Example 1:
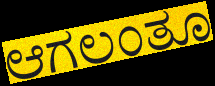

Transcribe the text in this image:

ಆಗಲಂತೂ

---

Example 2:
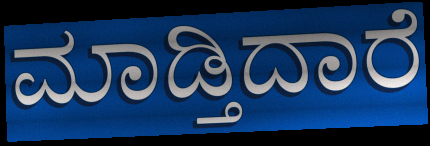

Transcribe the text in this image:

ಮಾಡ್ತಿದಾರೆ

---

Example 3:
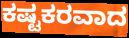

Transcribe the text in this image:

ಕಷ್ಟಕರವಾದ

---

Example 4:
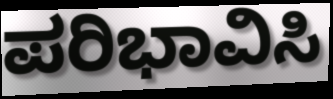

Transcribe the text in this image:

ಪರಿಭಾವಿಸಿ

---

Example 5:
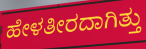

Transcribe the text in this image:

ಹೇಳತೀರದಾಗಿತ್ತು